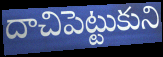
దాచిపెట్టుకుని